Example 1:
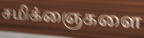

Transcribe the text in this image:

சமிக்ஞைகளை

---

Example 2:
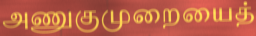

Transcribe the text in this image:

அணுகுமுறையைத்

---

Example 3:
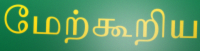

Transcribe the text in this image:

மேற்கூறிய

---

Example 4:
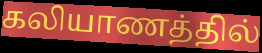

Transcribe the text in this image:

கலியாணத்தில்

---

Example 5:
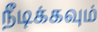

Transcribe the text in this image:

நீடிக்கவும்